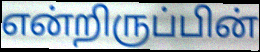
என்றிருப்பின்